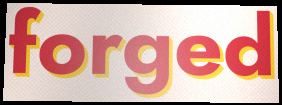
forged